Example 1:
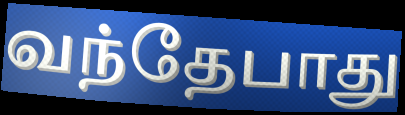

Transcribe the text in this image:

வந்தேபாது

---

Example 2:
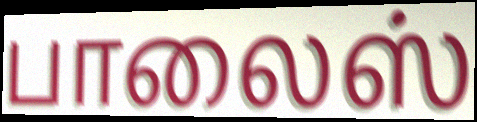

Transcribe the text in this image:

பாலைஸ்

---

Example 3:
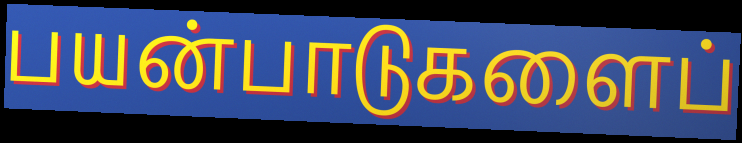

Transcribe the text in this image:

பயன்பாடுகளைப்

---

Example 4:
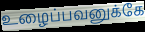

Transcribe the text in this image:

உழைப்பவனுக்கே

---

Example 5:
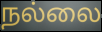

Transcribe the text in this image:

நல்லை